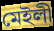
মেইলী